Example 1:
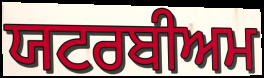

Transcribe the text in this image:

ਯਟਰਬੀਅਮ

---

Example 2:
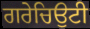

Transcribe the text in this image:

ਗਰੇਚਿਉਟੀ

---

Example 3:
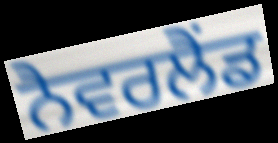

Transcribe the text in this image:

ਨੈਵਰਲੈਂਡ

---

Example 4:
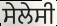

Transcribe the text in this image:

ਸੇਲੇਸੀ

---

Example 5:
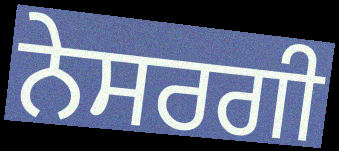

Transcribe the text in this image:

ਨੇਸਰਗੀ